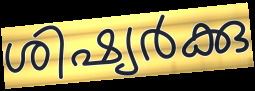
ശിഷ്യർക്കു